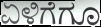
ಏಳಿಗೆಗೂ